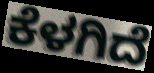
ಕೆಳಗಿದೆ